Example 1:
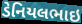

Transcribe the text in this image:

ડેનિયલભાઇ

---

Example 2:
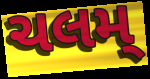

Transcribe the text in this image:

ચલમ્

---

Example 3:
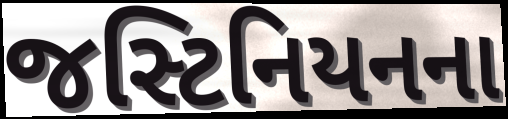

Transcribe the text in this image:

જસ્ટિનિયનના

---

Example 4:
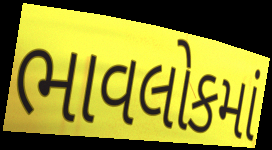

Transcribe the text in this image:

ભાવલોકમાં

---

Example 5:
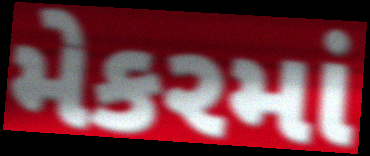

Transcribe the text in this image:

મેકરમાં